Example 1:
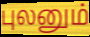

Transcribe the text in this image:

புலனும்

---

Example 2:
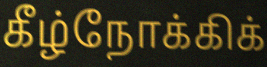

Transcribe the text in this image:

கீழ்நோக்கிக்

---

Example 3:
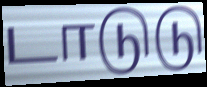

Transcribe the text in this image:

டாடுடு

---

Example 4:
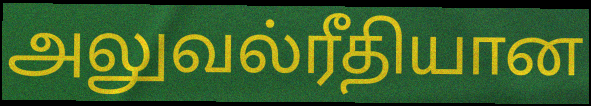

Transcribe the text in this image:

அலுவல்ரீதியான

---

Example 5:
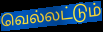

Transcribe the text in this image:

வெல்லட்டும்